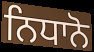
ਨਿਧਾਨੋ